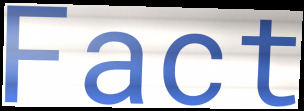
Fact